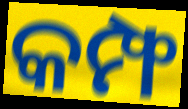
କମ୍ଫ